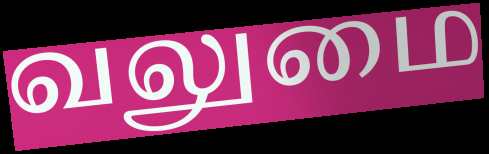
வலுமை